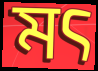
মৎ